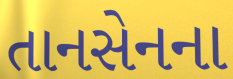
તાનસેનના